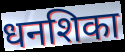
धनशिका